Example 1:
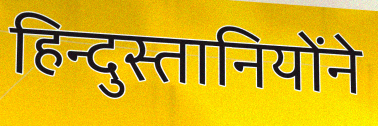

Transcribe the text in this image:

हिन्दुस्तानियोंने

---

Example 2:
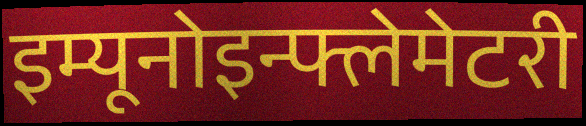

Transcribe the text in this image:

इम्यूनोइन्फ्लेमेटरी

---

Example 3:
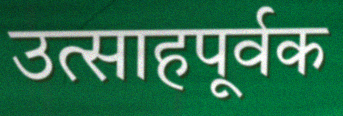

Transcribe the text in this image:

उत्साहपूर्वक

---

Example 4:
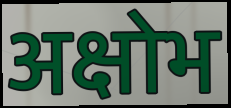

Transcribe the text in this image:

अक्षोभ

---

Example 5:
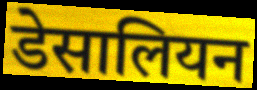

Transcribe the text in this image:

डेसालियन